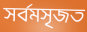
সর্বমসৃজত